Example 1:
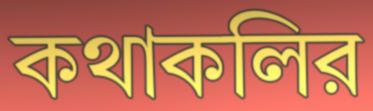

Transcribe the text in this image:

কথাকলির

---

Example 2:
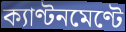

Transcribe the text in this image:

ক্যাণ্টনমেণ্টে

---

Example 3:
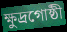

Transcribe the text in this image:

ক্ষুদ্রগোষ্ঠী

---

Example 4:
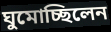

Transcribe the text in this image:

ঘুমোচ্ছিলেন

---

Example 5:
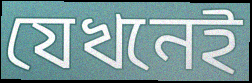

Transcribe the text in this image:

যেখনেই